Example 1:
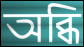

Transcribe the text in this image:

অব্ধি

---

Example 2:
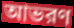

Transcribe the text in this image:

আভরণ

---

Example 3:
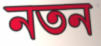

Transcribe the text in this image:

নতন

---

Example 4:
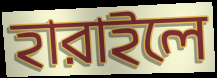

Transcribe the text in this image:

হারাইলে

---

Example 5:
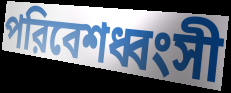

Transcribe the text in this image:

পরিবেশধ্বংসী